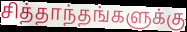
சித்தாந்தங்களுக்கு